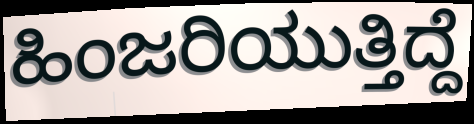
ಹಿಂಜರಿಯುತ್ತಿದ್ದೆ